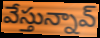
వేస్తున్నావ్